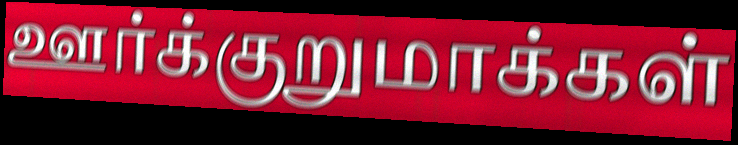
ஊர்க்குறுமாக்கள்